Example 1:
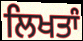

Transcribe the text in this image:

ਲਿਖਤਾੰ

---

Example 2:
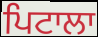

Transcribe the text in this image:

ਪਿਟਾਲਾ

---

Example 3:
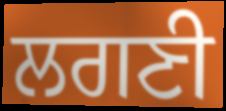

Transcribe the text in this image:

ਲਗਣੀ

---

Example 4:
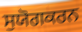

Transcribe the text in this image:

ਸੁਯੋਗਕਰਨ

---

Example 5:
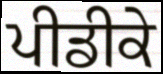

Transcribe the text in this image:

ਪੀਡੀਕੇ